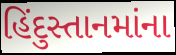
હિંદુસ્તાનમાંના